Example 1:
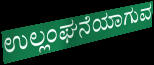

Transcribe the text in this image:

ಉಲ್ಲಂಘನೆಯಾಗುವ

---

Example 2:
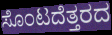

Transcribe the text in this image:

ಸೊಂಟದೆತ್ತರದ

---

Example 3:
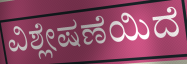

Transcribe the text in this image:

ವಿಶ್ಲೇಷಣೆಯಿದೆ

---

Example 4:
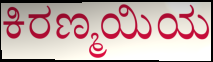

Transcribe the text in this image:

ಕಿರಣ್ಮಯಿಯ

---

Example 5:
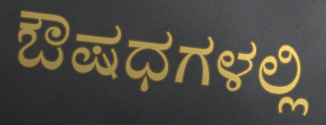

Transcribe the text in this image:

ಔಷಧಗಳಲ್ಲಿ